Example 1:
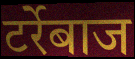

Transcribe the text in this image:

टर्रेबाज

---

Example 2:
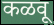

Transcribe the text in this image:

कळवू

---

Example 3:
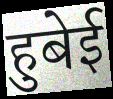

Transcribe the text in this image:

हुबेई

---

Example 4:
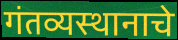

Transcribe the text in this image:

गंतव्यस्थानाचे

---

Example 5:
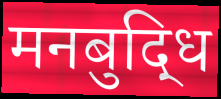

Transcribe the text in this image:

मनबुद्धि